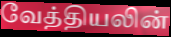
வேத்தியலின்